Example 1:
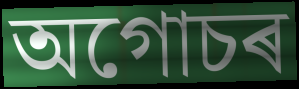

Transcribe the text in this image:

অগোচৰ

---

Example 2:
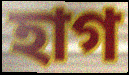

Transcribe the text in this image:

হাগ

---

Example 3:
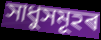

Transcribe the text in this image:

সাধুসমূহৰ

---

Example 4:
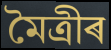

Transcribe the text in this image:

মৈত্ৰীৰ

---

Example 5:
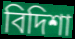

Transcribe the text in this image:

বিদিশা